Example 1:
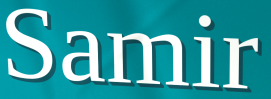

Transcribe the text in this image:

Samir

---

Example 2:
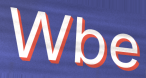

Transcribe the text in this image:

Wbe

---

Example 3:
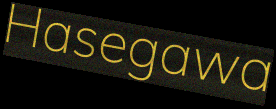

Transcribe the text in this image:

Hasegawa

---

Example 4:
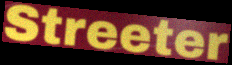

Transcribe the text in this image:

Streeter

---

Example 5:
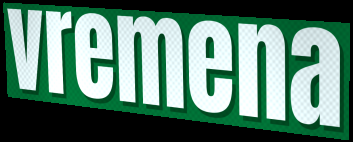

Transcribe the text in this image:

vremena